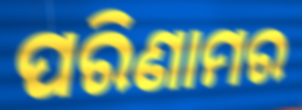
ପରିଣାମର